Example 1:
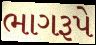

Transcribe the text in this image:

ભાગરૂપે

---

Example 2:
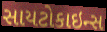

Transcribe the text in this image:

સાયટોકાઇન્સ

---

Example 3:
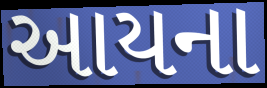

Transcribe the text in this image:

આયના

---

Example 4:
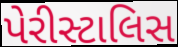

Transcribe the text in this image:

પેરીસ્ટાલિસ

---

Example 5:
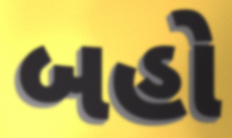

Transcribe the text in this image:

બહો